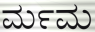
ರ್ಮಮ